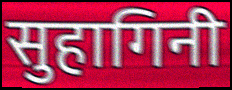
सुहागिनी